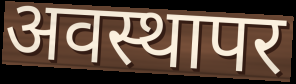
अवस्थापर